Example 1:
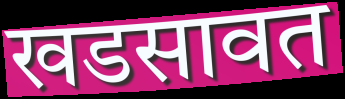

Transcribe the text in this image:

खडसावत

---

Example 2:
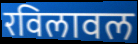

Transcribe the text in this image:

रविलावल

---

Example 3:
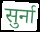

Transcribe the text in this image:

सुर्ना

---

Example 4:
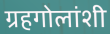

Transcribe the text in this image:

ग्रहगोलांशी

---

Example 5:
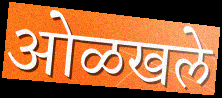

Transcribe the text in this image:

ओळखले